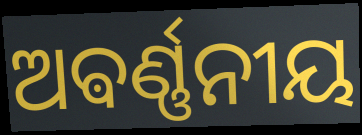
ଅଵର୍ଣ୍ଣନୀୟ